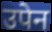
उपेन